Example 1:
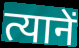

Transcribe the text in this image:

त्यानें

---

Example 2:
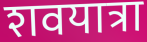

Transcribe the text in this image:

शवयात्रा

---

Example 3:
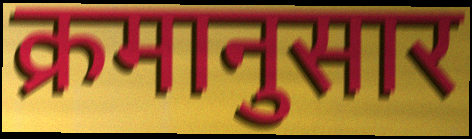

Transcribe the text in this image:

क्रमानुसार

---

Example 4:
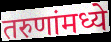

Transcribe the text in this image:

तरुणांमध्ये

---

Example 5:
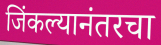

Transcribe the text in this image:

जिंकल्यानंतरचा